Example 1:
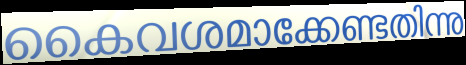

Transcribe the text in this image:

കൈവശമാക്കേണ്ടതിന്നു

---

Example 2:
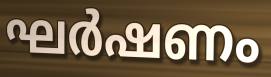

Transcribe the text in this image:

ഘർഷണം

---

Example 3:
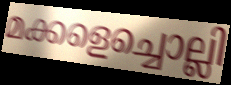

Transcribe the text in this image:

മക്കളെച്ചൊല്ലി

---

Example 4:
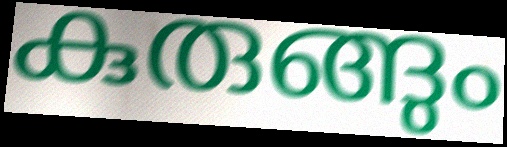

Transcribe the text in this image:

കുരുങ്ങും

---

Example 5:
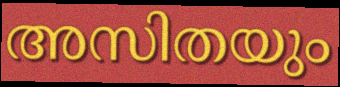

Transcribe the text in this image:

അസിതയും